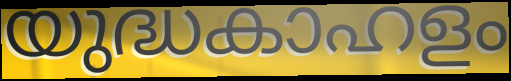
യുദ്ധകാഹളം